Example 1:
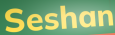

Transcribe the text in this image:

Seshan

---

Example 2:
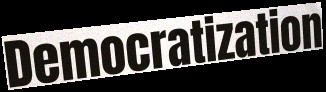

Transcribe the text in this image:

Democratization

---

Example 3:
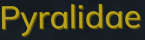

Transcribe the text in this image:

Pyralidae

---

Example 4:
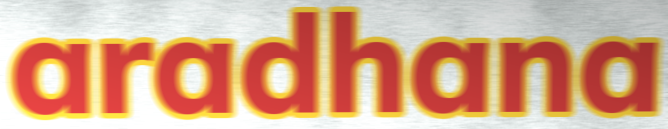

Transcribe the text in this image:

aradhana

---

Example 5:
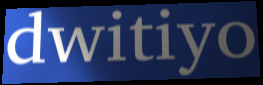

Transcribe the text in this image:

dwitiyo